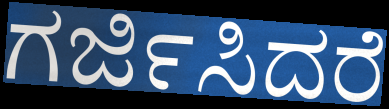
ಗರ್ಜಿಸಿದರೆ